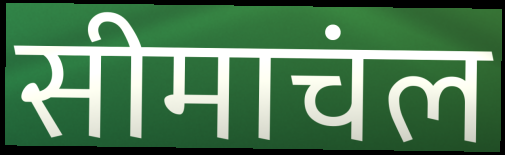
सीमाचंल